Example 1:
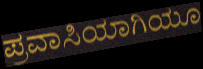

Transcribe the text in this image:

ಪ್ರವಾಸಿಯಾಗಿಯೂ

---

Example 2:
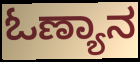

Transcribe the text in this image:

ಓಣ್ಯಾನ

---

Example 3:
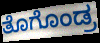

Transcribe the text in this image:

ತೊಗೊಂಡ್ರ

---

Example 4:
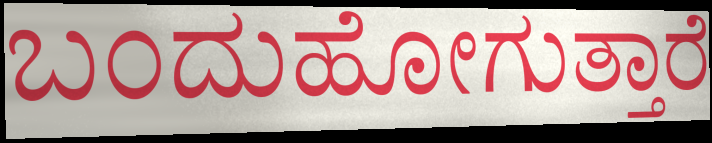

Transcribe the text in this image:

ಬಂದುಹೋಗುತ್ತಾರೆ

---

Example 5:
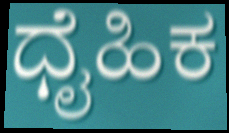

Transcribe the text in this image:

ಧೈಹಿಕ